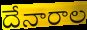
దేనారాల